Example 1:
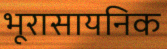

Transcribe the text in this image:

भूरासायनिक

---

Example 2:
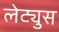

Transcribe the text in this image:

लेट्युस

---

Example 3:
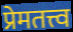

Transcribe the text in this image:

प्रेमतत्त्व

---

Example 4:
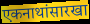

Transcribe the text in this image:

एकनाथांसारखा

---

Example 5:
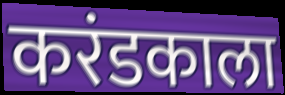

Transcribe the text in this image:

करंडकाला